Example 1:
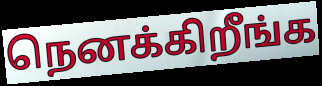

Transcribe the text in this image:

நெனக்கிறீங்க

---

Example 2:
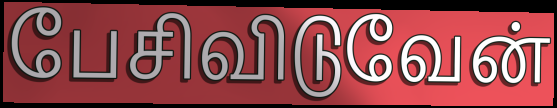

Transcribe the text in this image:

பேசிவிடுவேன்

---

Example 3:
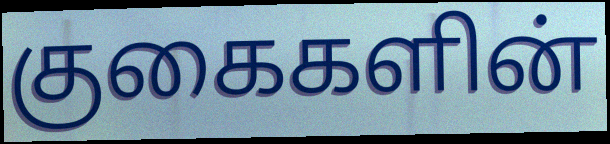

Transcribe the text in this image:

குகைகளின்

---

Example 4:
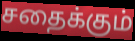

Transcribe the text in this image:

சதைக்கும்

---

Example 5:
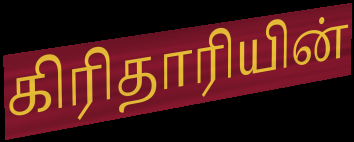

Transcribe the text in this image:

கிரிதாரியின்